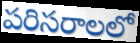
పరిసరాలలో